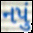
નપું